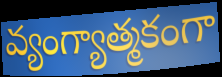
వ్యంగ్యాత్మకంగా